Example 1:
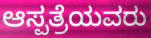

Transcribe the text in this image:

ಆಸ್ಪತ್ರೆಯವರು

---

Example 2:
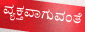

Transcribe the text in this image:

ವ್ಯಕ್ತವಾಗುವಂತೆ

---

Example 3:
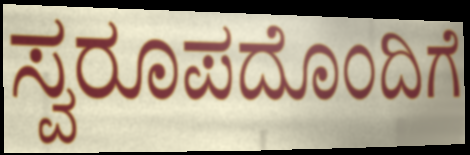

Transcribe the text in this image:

ಸ್ವರೂಪದೊಂದಿಗೆ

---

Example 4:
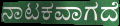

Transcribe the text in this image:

ನಾಟಕವಾಗದೆ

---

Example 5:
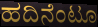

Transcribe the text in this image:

ಹದಿನೆಂಟೂ